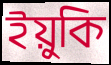
ইয়ুকি